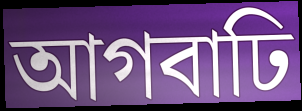
আগবাঢি